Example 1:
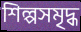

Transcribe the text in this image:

শিল্পসমৃদ্ধ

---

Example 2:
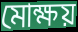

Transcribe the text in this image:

মোক্ষয়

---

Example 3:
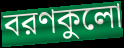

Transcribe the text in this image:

বরণকুলো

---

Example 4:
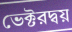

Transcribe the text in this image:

ভেক্টরদ্বয়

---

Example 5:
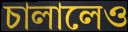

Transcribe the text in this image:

চালালেও